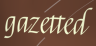
gazetted